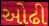
ઓઢી